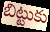
బిట్టుకు